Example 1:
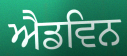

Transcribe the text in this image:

ਐਡਵਿਨ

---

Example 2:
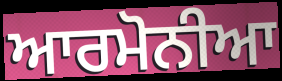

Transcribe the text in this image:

ਆਰਮੋਨੀਆ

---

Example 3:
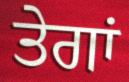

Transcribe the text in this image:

ਤੇਗਾਂ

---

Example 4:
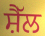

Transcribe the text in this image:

ਸ਼ੈੱਲ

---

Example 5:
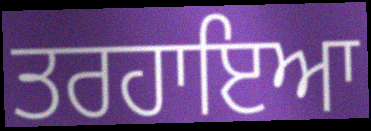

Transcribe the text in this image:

ਤਰਹਾਇਆ